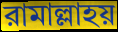
রামাল্লাহয়